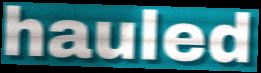
hauled